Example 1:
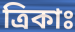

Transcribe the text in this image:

ত্রিকাঃ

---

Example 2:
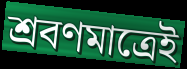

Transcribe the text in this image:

শ্রবণমাত্রেই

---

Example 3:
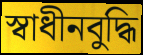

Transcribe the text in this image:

স্বাধীনবুদ্ধি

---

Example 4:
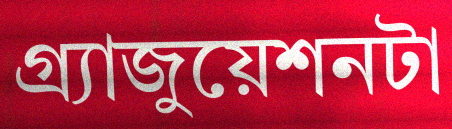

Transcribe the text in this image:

গ্র্যাজুয়েশনটা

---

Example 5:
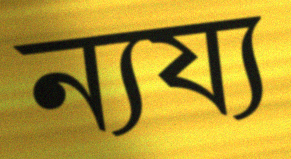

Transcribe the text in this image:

ন্যয্য